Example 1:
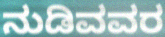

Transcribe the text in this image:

ನುಡಿವವರ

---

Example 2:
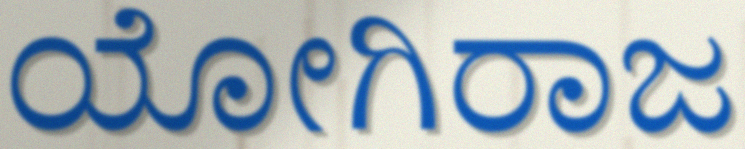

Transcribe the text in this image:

ಯೋಗಿರಾಜ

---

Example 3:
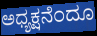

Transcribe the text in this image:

ಅಧ್ಯಕ್ಷನೆಂದೂ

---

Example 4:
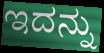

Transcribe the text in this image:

ಇದನ್ನು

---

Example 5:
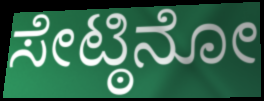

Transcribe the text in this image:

ಸೇಟ್ಠಿನೋ